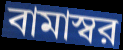
বামাস্বর